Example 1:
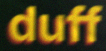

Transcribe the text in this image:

duff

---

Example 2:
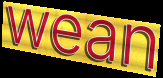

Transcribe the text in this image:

wean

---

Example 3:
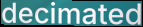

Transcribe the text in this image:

decimated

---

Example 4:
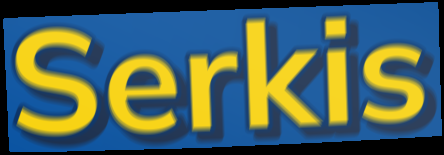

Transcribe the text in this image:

Serkis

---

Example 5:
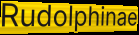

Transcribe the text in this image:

Rudolphinae